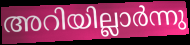
അറിയില്ലാർന്നു